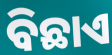
ବିଛାଏ